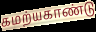
கமற்யகாண்டு